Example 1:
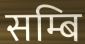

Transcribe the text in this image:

सम्बि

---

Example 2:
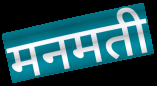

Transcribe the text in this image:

मनमती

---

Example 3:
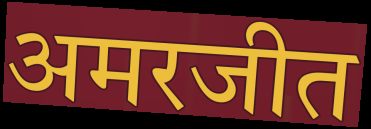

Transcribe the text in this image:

अमरजीत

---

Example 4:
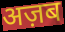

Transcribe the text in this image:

अज़ब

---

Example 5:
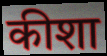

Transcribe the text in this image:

कीशा